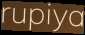
rupiya